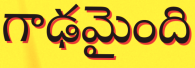
గాఢమైంది